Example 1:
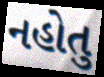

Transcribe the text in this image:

નહોતુ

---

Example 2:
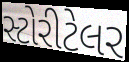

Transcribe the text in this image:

સ્ટોરીટેલર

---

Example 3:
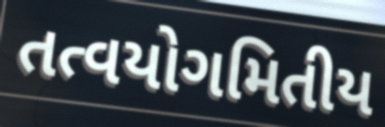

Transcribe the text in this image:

તત્વયોગમિતીય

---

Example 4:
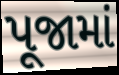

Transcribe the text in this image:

પૂજામાં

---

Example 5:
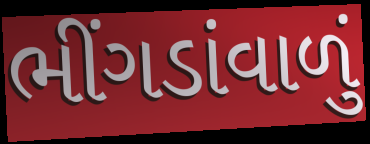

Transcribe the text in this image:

ભીંગડાંવાળું